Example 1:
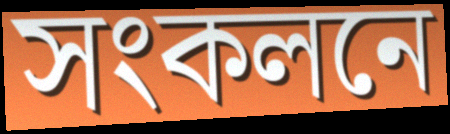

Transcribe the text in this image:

সংকলনে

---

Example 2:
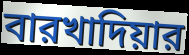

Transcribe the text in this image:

বারখাদিয়ার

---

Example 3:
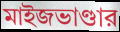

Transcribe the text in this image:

মাইজভাণ্ডার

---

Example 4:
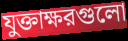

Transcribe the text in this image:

যুক্তাক্ষরগুলো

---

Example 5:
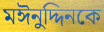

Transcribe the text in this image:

মঈনুদ্দিনকে